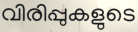
വിരിപ്പുകളുടെ